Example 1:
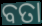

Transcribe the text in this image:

ବତା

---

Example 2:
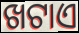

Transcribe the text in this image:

ଖଟାଏ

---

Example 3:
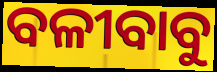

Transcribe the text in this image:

ବଳୀବାବୁ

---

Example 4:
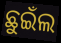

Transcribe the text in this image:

ଛୁଇଁଲ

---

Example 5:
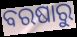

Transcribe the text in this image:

ବରଷାରୁ